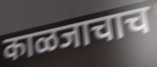
काळजाचाच